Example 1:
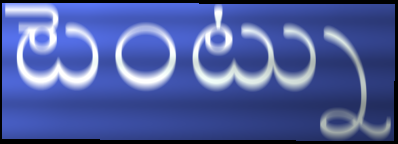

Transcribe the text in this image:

టెంట్ను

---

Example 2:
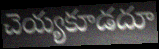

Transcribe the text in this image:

చెయ్యకూడదూ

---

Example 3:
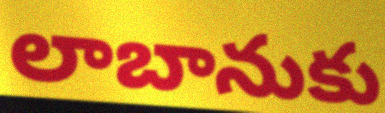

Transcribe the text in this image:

లాబానుకు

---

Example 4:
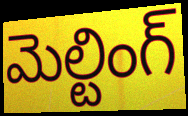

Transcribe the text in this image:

మెల్టింగ్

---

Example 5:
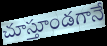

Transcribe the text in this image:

చూస్తూండగానే